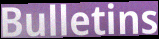
Bulletins